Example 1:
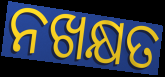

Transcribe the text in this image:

ନଖକ୍ଷତ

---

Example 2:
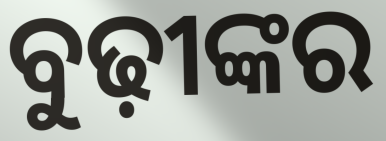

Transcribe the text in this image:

ବୁଢ଼ୀଙ୍କର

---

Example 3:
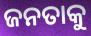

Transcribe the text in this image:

ଜନତାକୁ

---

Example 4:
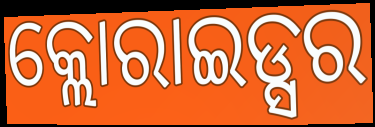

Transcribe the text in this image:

କ୍ଲୋରାଇଡ୍ସର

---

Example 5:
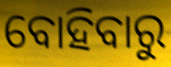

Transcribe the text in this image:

ବୋହିବାରୁ